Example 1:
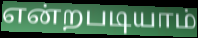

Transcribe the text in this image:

என்றபடியாம்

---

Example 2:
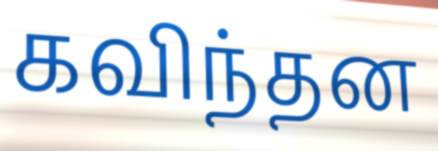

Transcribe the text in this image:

கவிந்தன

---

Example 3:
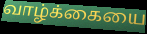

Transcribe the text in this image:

வாழ்க்கையை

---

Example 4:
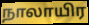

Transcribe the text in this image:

நாலாயிர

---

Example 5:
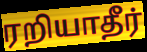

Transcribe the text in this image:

ரறியாதீர்